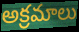
అక్రమాలు